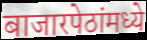
बाजारपेठांमध्ये